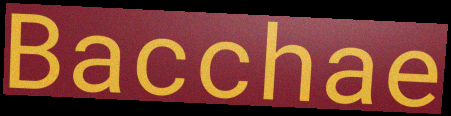
Bacchae